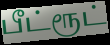
பீட்ரூட்